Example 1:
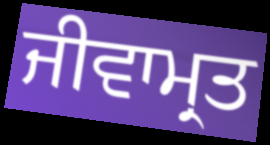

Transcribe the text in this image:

ਜੀਵਾਮ੍ਰਤ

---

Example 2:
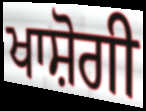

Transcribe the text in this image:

ਖਾਸ਼ੋਗੀ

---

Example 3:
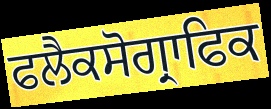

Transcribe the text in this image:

ਫਲੈਕਸੋਗ੍ਰਾਫਿਕ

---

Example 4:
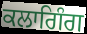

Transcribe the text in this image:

ਕਲਾਗਿੰਗ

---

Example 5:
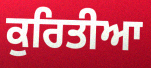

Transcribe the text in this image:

ਕੁਰਿਤੀਆ